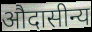
औदासीन्य